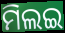
ମିଲଇ